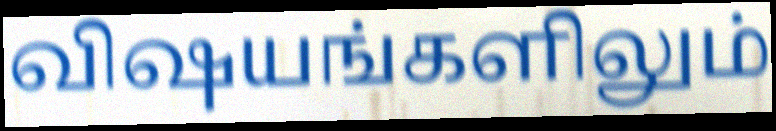
விஷயங்களிலும்